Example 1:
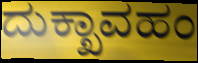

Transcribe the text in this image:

ದುಕ್ಖಾವಹಂ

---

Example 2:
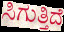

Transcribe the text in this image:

ಸಿಗುತ್ತಿದೆ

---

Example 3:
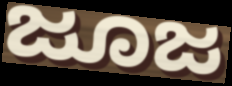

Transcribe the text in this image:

ಜೂಜ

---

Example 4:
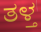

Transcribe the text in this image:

ತಳ್ತ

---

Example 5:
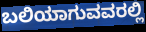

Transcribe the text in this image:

ಬಲಿಯಾಗುವವರಲ್ಲಿ